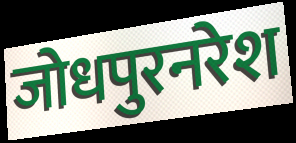
जोधपुरनरेश